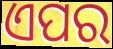
ଏପର